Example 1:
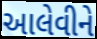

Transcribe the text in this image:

આલેવીને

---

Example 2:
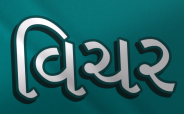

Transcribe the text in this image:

વિચર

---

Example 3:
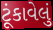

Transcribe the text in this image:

ટૂંકાવેલું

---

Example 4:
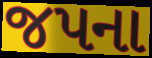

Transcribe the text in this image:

જપના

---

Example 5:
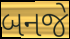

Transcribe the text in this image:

બનજે